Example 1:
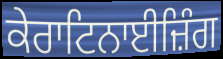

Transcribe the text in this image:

ਕੇਰਾਟਿਨਾਈਜ਼ਿੰਗ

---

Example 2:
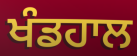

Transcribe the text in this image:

ਖੰਡਹਾਲ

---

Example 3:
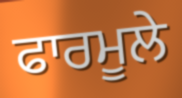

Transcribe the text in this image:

ਫਾਰਮੂਲੇ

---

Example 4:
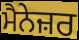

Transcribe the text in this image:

ਮੈਨੇਜ਼ਰ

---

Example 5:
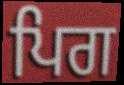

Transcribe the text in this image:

ਪਿਗ